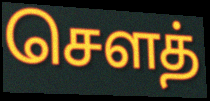
சௌத்